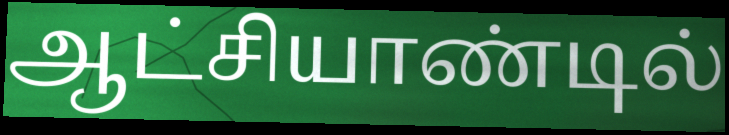
ஆட்சியாண்டில்